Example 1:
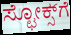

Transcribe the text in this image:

ಸ್ಟೋಕ್ಸ್‌ಗೆ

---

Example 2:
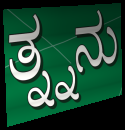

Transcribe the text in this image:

ತ್ನ್ನನು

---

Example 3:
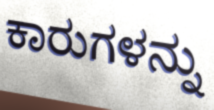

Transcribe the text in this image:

ಕಾರುಗಳನ್ನು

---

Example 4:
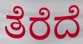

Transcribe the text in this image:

ತೆರೆದೆ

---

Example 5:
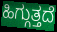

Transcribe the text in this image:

ಹಿಗ್ಗುತ್ತದೆ